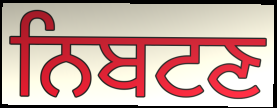
ਨਿਬਟਣ